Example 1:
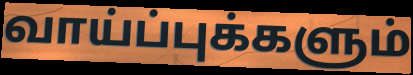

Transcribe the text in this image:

வாய்ப்புக்களும்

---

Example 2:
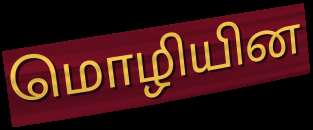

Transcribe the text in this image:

மொழியின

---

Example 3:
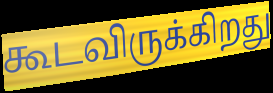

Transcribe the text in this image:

கூடவிருக்கிறது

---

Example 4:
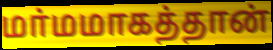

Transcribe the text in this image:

மர்மமாகத்தான்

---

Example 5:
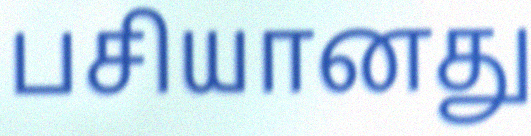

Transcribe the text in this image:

பசியானது